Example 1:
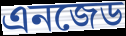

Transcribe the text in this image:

এনজেড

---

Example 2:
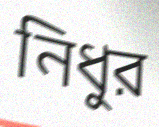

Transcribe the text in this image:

নিধুর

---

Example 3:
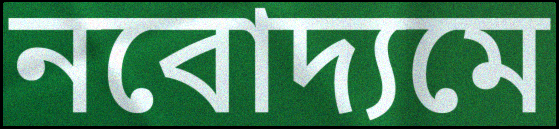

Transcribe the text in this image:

নবোদ্যমে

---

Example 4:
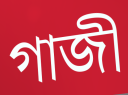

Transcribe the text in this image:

গাজী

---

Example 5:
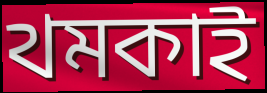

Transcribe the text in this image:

থমকাই